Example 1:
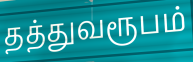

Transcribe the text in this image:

தத்துவரூபம்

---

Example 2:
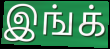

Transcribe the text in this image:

இங்க்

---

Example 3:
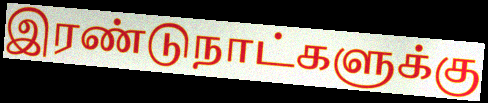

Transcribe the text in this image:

இரண்டுநாட்களுக்கு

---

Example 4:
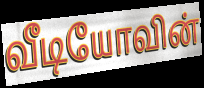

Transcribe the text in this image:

வீடியோவின்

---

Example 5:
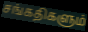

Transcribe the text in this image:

சங்கதிகளும்